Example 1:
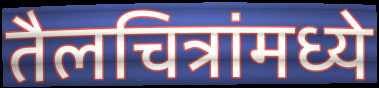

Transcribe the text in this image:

तैलचित्रांमध्ये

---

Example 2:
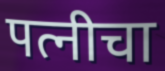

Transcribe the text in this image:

पत्नीचा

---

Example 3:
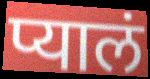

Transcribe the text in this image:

प्यालं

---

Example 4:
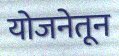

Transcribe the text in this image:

योजनेतून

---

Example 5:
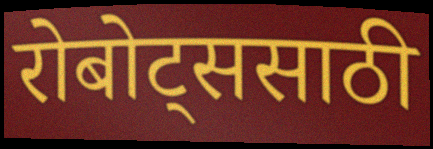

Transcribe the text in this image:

रोबोट्ससाठी